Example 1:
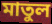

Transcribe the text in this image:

মাতুল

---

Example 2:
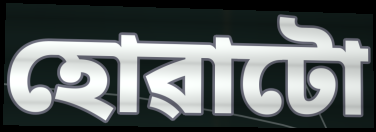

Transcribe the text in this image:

হোৱাটো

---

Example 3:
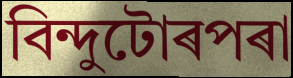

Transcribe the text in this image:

বিন্দুটোৰপৰা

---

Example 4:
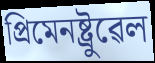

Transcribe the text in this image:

প্ৰিমেনষ্ট্ৰুৱেল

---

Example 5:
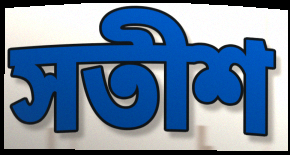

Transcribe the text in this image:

সতীশ